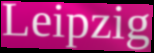
Leipzig